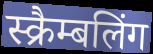
स्क्रैम्बलिंग